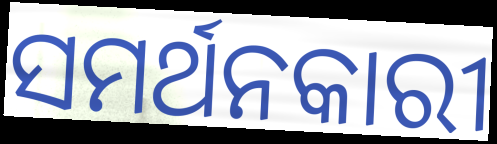
ସମର୍ଥନକାରୀ